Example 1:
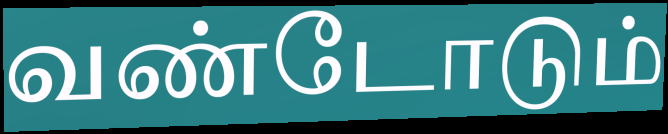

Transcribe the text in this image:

வண்டோடும்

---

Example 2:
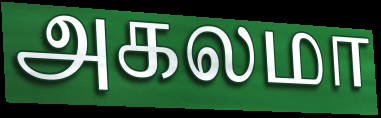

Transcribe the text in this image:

அகலமா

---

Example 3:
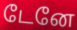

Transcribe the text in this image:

டேனே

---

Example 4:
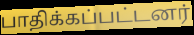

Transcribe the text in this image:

பாதிக்கப்பட்டனர்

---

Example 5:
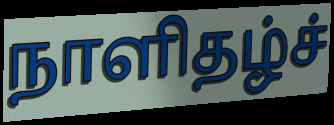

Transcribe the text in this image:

நாளிதழ்ச்